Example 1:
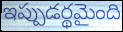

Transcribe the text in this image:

ఇప్పుడర్థమైంది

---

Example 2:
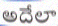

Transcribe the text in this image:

అదేలా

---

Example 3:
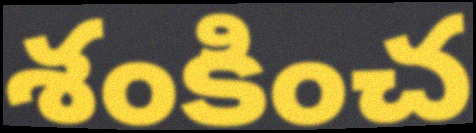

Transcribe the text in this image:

శంకించ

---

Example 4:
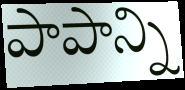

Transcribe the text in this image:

పాపాన్ని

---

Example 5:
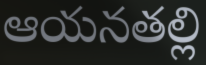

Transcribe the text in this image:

ఆయనతల్లి